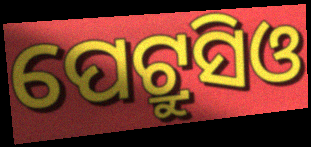
ପେଟ୍ରୁସିଓ